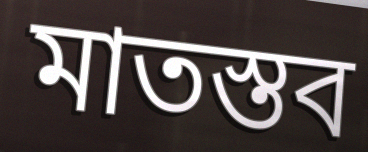
মাতস্তব